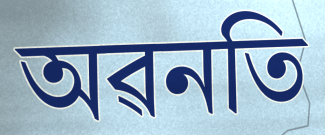
অৱনতি